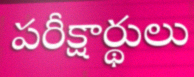
పరీక్షార్థులు